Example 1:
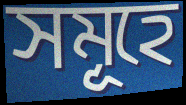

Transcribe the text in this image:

সমূহে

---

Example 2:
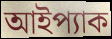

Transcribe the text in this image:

আইপ্যাক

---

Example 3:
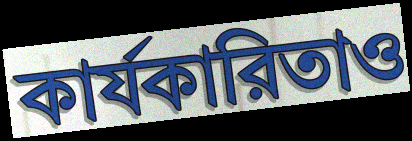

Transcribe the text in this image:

কার্যকারিতাও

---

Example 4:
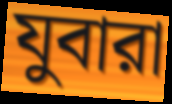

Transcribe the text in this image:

যুবারা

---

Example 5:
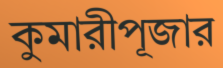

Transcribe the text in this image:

কুমারীপূজার